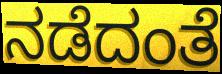
ನಡೆದಂತೆ